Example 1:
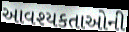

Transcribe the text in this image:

આવશ્યકતાઓની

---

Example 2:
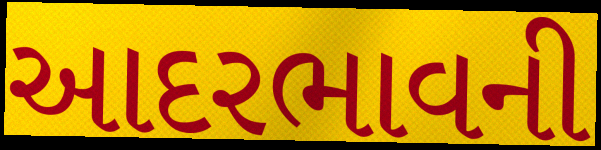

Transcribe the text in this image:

આદરભાવની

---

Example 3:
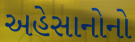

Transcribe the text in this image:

અહેસાનોનો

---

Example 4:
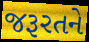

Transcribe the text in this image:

જરૂરતને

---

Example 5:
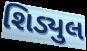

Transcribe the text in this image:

શિડ્યુલ